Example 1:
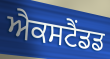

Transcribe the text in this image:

ਐਕਸਟੈਂਡਡ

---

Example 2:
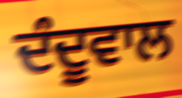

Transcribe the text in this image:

ਦੰਦੂਵਾਲ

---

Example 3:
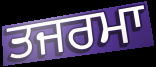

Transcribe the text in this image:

ਤਜਰਮਾ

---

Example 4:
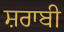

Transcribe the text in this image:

ਸ਼ਰਾਬੀ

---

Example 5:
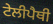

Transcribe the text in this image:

ਟੇਲੀਪੈਥੀ